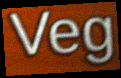
Veg